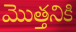
మొత్తనికి